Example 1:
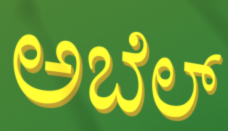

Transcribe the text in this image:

ಅಬೆಲ್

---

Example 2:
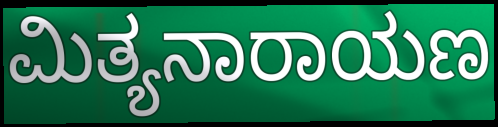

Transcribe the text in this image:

ಮಿತ್ಯನಾರಾಯಣ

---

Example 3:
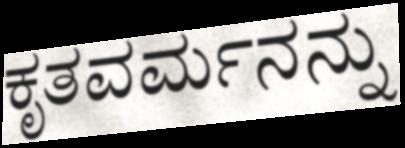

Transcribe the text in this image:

ಕೃತವರ್ಮನನ್ನು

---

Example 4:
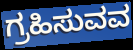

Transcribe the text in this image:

ಗ್ರಹಿಸುವವ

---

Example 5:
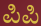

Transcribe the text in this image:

ಪಿಪಿ